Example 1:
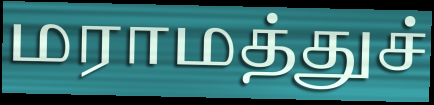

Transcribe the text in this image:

மராமத்துச்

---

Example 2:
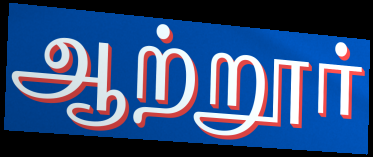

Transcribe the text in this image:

ஆற்றூர்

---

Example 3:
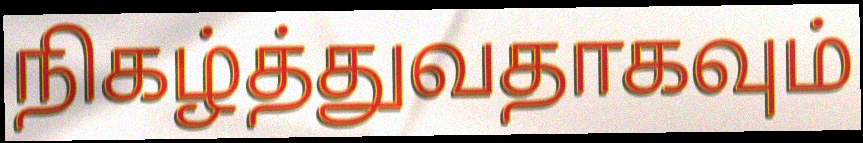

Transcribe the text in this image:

நிகழ்த்துவதாகவும்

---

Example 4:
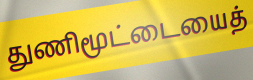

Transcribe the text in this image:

துணிமூட்டையைத்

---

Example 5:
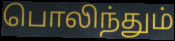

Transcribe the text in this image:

பொலிந்தும்